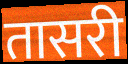
तासरी